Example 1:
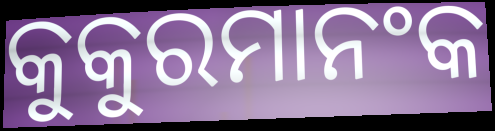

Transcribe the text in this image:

କୁକୁରମାନଂକ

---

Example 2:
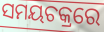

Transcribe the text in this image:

ସମୟଚକ୍ରରେ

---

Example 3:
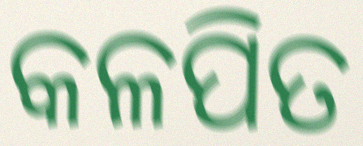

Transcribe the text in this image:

କଳପିତ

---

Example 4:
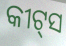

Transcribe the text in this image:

କୀଟ୍‌ସ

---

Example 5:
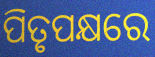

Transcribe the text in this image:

ପିତୃପକ୍ଷରେ